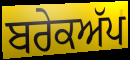
ਬਰੇਕਅੱਪ